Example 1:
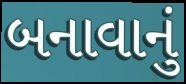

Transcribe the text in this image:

બનાવાનું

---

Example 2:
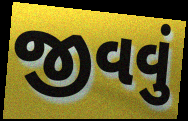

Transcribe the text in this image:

જીવવું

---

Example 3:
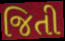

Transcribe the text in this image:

જિતી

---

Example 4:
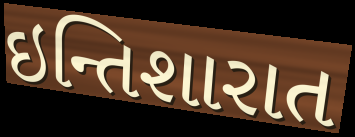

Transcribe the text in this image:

ઇન્તિશારાત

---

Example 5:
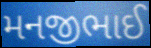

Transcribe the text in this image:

મનજીભાઈ